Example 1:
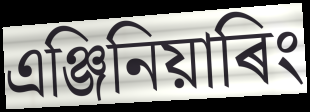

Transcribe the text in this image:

এঞ্জিনিয়াৰিং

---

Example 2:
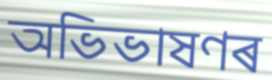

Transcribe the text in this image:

অভিভাষণৰ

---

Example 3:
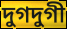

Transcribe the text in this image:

দুগদুগী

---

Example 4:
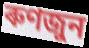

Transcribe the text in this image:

ৰুণজুন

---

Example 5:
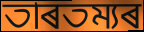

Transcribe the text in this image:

তাৰতম্যৰ